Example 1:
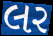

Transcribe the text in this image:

લર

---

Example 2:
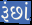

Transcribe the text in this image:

રૂંછાં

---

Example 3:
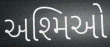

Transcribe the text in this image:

અશ્મિઓ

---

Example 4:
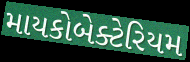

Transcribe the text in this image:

માયકોબેક્ટેરિયમ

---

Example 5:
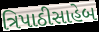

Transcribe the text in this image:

ત્રિપાઠીસાહેબ